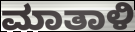
ಮಾತಾಳಿ